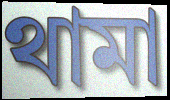
থামা